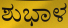
ಶುಭಾಳ